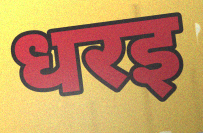
धरइ